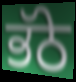
ਭੱਠੇ